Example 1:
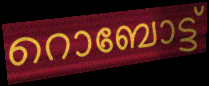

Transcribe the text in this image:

റൊബോട്ട്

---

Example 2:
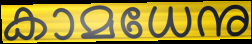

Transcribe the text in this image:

കാമധേനു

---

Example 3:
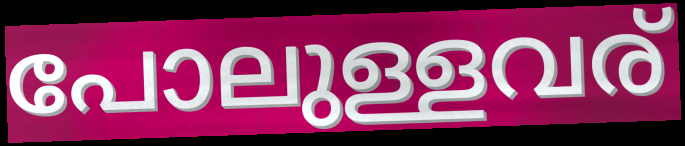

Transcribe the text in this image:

പോലുള്ളവര്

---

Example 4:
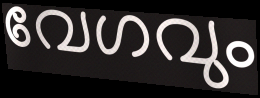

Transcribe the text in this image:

വേഗവും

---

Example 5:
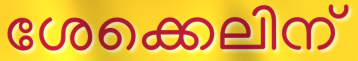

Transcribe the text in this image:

ശേക്കെലിന്